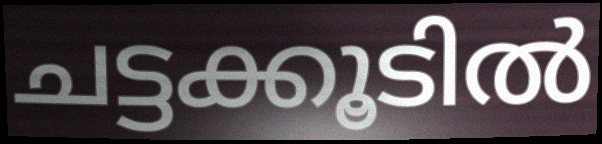
ചട്ടക്കൂടിൽ